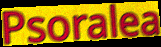
Psoralea